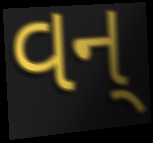
વન્